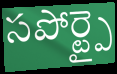
సపోర్ట్పై